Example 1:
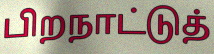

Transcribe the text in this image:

பிறநாட்டுத்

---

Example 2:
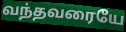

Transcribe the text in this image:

வந்தவரையே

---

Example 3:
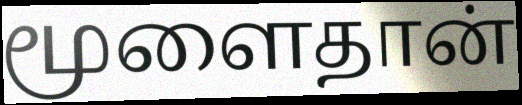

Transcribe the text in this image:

மூளைதான்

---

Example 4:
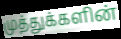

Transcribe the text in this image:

முத்துக்களின்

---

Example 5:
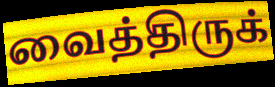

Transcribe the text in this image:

வைத்திருக்